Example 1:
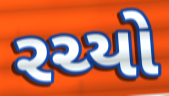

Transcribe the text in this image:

રચ્યો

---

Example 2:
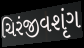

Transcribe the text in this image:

ચિરંજીવશૃંગ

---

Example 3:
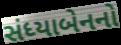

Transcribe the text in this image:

સંધ્યાબેનનો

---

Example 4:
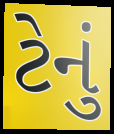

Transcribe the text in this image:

ટેનું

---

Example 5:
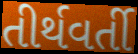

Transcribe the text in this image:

તીર્થવર્તી